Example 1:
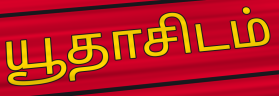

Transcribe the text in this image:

யூதாசிடம்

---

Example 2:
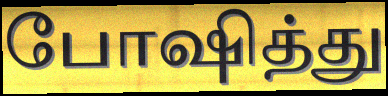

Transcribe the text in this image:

போஷித்து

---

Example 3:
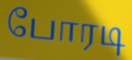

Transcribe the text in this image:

போரடி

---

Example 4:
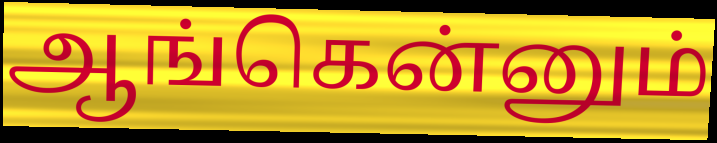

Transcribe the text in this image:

ஆங்கென்னும்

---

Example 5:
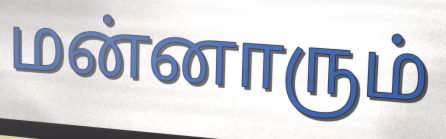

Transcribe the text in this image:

மன்னாரும்